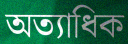
অত্যাধিক